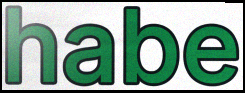
habe